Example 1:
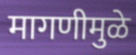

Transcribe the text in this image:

मागणीमुळे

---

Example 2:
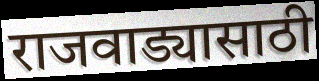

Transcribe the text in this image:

राजवाड्यासाठी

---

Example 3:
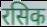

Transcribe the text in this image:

रसिक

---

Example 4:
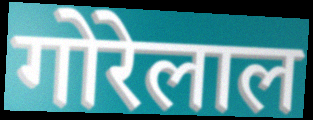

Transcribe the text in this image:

गोरेलाल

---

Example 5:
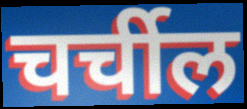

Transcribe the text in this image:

चर्चील